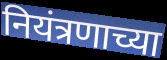
नियंत्रणाच्या